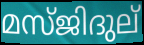
മസ്ജിദുല്